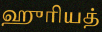
ஹுரியத்